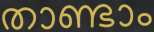
താണ്ടാം